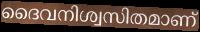
ദൈവനിശ്വസിതമാണ്